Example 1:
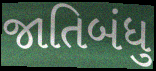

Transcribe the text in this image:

જાતિબંધુ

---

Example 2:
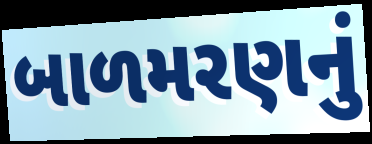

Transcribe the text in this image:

બાળમરણનું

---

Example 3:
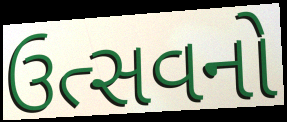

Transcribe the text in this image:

ઉત્સવનો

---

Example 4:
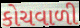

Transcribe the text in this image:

કોચવાળી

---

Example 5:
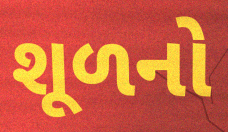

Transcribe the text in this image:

શૂળનો